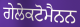
ਗੇਲੇਕਟੋਮੈਨਨ